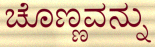
ಚೊಣ್ಣವನ್ನು